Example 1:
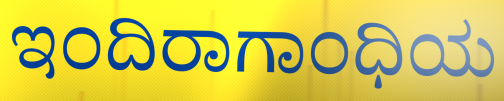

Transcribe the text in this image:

ಇಂದಿರಾಗಾಂಧಿಯ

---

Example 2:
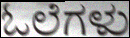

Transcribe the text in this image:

ಓಲೆಗಳು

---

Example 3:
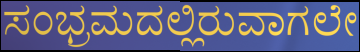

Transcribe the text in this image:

ಸಂಭ್ರಮದಲ್ಲಿರುವಾಗಲೇ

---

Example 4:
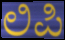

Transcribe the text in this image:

ಲಿಪಿ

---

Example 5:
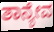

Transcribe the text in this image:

ತಾನ್ಯೇವ